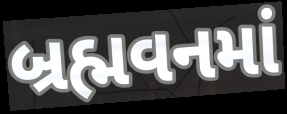
બ્રહ્મવનમાં